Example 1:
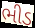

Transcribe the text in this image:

ભીડ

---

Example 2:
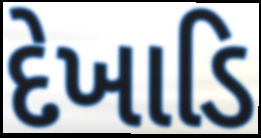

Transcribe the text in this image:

દેખાડિ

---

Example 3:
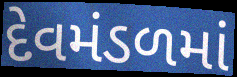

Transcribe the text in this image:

દેવમંડળમાં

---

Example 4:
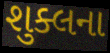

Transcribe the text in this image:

શુક્લના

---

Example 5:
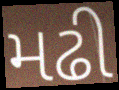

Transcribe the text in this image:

મઢી